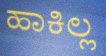
ಹಾಕಿಲ್ಲ